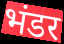
भंडर